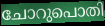
ചോറുപൊതി